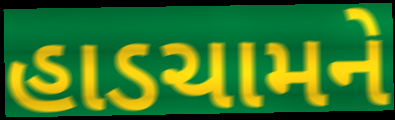
હાડચામને